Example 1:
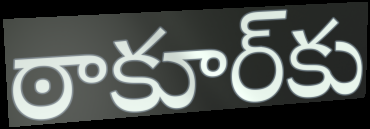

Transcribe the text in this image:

ఠాకూర్‌కు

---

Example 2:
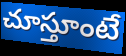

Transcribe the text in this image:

చూస్తూంటే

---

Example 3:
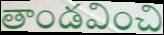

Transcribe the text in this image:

తాండవించి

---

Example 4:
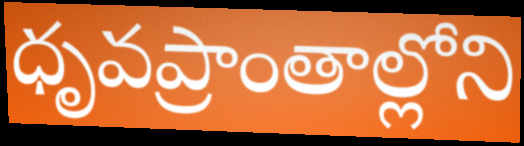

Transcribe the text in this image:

ధృవప్రాంతాల్లోని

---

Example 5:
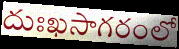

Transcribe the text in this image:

దుఃఖసాగరంలో